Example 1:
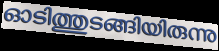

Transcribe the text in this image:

ഓടിത്തുടങ്ങിയിരുന്നു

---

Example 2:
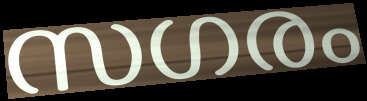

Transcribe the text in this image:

സഗരം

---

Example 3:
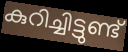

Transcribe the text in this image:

കുറിച്ചിട്ടുണ്ട്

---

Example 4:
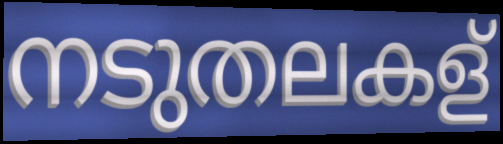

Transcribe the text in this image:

നടുതലകള്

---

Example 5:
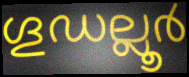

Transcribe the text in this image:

ഗൂഡല്ലൂർ